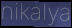
nikalya